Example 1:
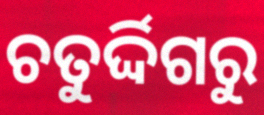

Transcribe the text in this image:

ଚତୁର୍ଦ୍ଦିଗରୁ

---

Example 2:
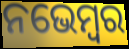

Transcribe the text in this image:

ନଭେମ୍ବର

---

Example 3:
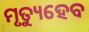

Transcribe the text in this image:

ମୃତ୍ୟୁହେବ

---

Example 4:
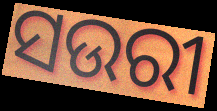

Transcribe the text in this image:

ସଉରୀ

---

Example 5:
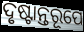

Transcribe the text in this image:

ଦୃଷ୍ଟାନ୍ତରୂପେ